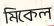
মিকেল